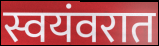
स्वयंवरात